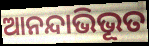
ଆନନ୍ଦାଭିଭୂତ